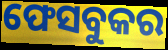
ଫେସବୁକର